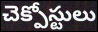
చెక్పోస్టులు